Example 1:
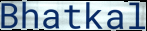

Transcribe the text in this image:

Bhatkal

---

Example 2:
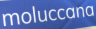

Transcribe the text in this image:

moluccana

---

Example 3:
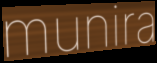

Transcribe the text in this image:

munira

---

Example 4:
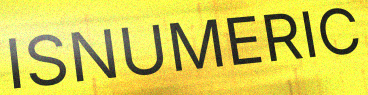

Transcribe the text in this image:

ISNUMERIC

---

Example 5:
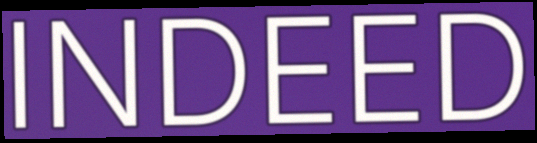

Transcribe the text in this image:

INDEED